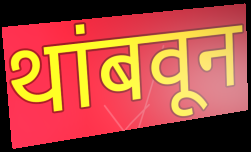
थांबवून